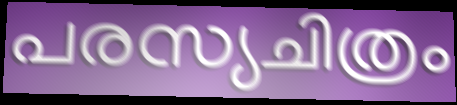
പരസ്യചിത്രം